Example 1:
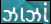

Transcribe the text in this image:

ઝાઝાં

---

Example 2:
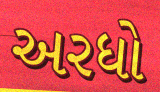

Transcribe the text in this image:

અરધો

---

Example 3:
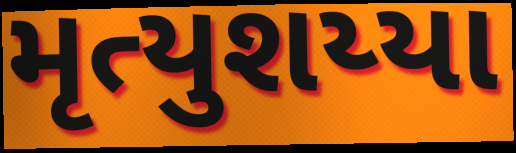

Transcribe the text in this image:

મૃત્યુશય્યા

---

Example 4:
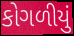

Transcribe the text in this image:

કોગળીયું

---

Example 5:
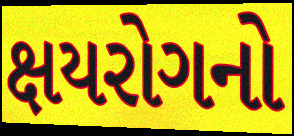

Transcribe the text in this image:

ક્ષયરોગનો